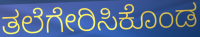
ತಲೆಗೇರಿಸಿಕೊಂಡ